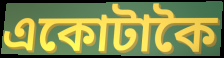
একোটাকৈ